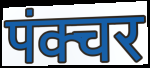
पंक्चर